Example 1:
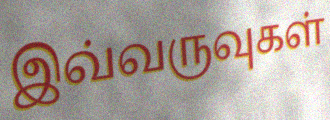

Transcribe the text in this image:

இவ்வருவுகள்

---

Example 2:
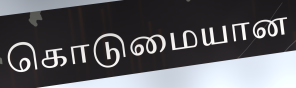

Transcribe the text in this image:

கொடுமையான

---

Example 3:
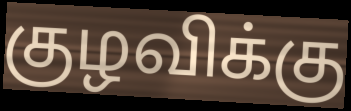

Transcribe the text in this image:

குழவிக்கு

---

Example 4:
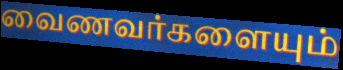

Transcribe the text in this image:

வைணவர்களையும்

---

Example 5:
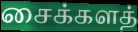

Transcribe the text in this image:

சைக்களத்